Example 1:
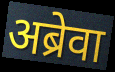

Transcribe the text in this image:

अब्रेवा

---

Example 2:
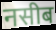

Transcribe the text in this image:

नसीब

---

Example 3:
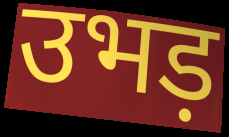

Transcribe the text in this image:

उभड़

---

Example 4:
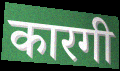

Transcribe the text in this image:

कारगी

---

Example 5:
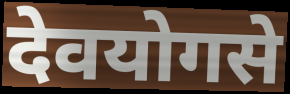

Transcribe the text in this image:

देवयोगसे